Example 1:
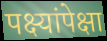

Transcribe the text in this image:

पक्ष्यांपेक्षा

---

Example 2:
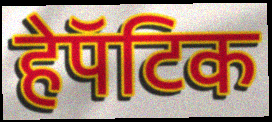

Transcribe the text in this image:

हेपॅटिक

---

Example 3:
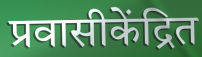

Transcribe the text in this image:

प्रवासीकेंद्रित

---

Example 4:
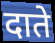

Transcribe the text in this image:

दाते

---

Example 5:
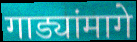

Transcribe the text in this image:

गाड्यांमागे